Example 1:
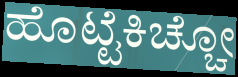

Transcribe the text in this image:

ಹೊಟ್ಟೆಕಿಚ್ಚೋ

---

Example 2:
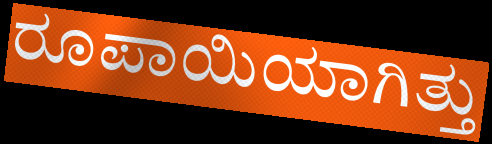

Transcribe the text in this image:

ರೂಪಾಯಿಯಾಗಿತ್ತು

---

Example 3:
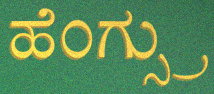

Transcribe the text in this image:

ಹೆಂಗ್ಸ್ರು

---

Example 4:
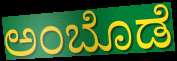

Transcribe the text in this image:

ಅಂಬೊಡೆ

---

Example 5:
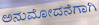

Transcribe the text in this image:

ಅನುಮೋದನೆಗಾಗಿ